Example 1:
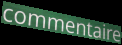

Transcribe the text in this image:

commentaire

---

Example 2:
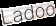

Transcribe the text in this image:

Ladoo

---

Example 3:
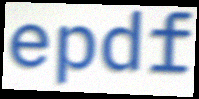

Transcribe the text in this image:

epdf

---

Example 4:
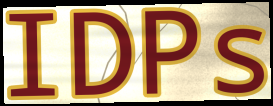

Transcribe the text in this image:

IDPs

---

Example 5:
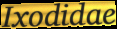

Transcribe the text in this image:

Ixodidae